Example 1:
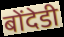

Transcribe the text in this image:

बोंदेडी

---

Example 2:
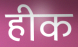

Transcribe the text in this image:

हीक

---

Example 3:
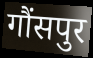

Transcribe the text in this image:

गौंसपुर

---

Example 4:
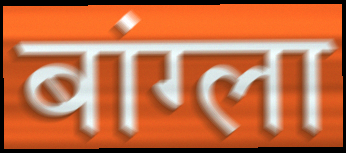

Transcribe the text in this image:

बांग्‍ला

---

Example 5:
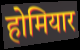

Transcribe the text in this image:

होमियार